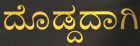
ದೊಡ್ದದಾಗಿ